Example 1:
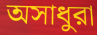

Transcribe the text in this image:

অসাধুরা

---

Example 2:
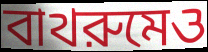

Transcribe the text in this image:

বাথরুমেও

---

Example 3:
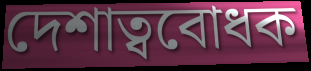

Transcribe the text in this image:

দেশাত্ববোধক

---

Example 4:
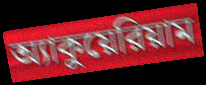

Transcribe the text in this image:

অ্যাকুয়েরিয়াম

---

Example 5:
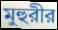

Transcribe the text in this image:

মুহুরীর